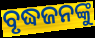
ବୃଦ୍ଧଜନଙ୍କୁ